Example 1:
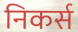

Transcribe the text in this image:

निकर्स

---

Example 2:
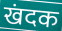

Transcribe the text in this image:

खंदक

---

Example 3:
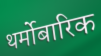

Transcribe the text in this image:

थर्मोबारिक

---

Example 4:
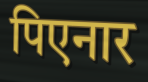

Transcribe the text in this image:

पिएनार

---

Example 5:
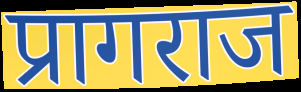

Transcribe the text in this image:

प्रागराज